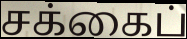
சக்கைப்